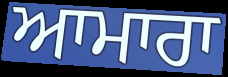
ਆਮਾਰਾ